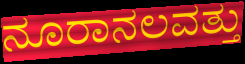
ನೂರಾನಲವತ್ತು